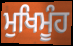
ਮੁਖਿਮੂੰਹ